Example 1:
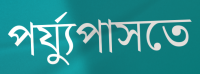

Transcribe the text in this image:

পর্য্যুপাসতে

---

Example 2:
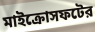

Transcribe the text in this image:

মাইক্রোসফটের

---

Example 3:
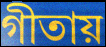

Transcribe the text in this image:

গীতায়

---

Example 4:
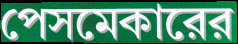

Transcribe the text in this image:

পেসমেকারের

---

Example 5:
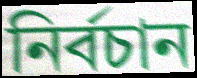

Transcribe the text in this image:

নির্বচান